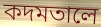
কদমতালে